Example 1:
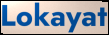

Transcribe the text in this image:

Lokayat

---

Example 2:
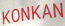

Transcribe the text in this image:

KONKAN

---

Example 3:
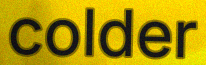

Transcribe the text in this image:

colder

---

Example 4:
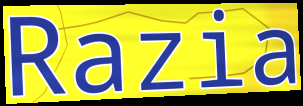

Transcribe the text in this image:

Razia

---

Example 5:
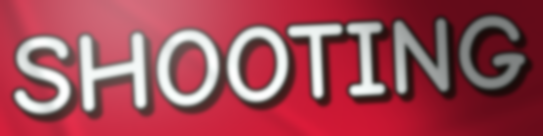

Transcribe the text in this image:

SHOOTING